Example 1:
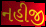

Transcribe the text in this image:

નહીજી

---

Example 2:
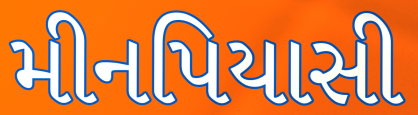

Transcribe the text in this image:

મીનપિયાસી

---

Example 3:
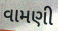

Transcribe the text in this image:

વામણી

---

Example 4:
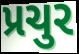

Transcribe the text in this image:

પ્રચુર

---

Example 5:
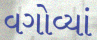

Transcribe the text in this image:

વગોવ્યાં